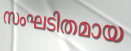
സംഘടിതമായ